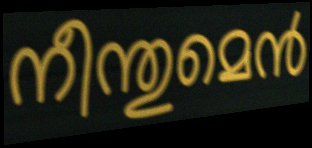
നീന്തുമെൻ